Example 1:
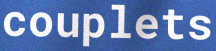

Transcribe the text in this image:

couplets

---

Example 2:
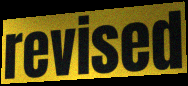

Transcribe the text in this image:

revised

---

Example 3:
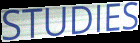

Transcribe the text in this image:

STUDIES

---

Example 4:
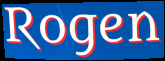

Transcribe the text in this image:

Rogen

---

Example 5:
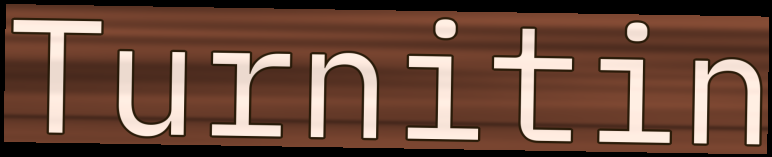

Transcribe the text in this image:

Turnitin